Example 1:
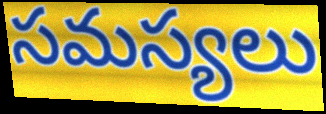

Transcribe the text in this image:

సమస్యలు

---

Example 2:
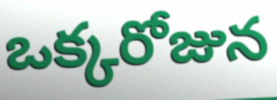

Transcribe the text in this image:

ఒక్కరోజున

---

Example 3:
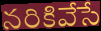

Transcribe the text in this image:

నరికివేసే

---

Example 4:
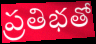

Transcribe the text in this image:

ప్రతిభతో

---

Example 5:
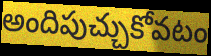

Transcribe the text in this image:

అందిపుచ్చుకోవటం